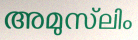
അമുസ്‌ലിം